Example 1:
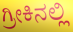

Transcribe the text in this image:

ಗ್ರೀಕಿನಲ್ಲಿ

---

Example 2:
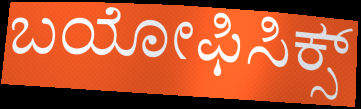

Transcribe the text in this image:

ಬಯೋಫಿಸಿಕ್ಸ್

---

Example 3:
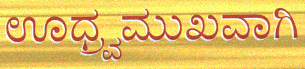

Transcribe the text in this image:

ಊಧ್ರ್ವಮುಖವಾಗಿ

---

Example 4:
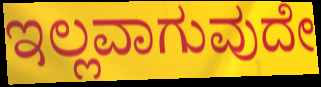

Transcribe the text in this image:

ಇಲ್ಲವಾಗುವುದೇ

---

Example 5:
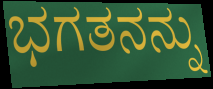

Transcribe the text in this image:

ಭಗತನನ್ನು